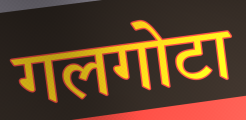
गलगोटा